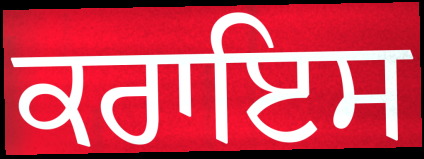
ਕਰਾਇਸ